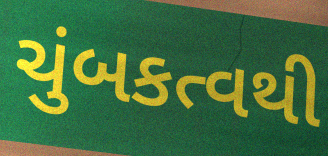
ચુંબકત્વથી